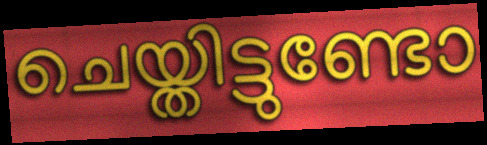
ചെയ്തിട്ടുണ്ടോ